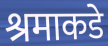
श्रमाकडे